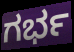
ಗರ್ಭ